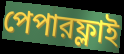
পেপারফ্লাই